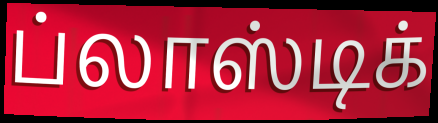
ப்லாஸ்டிக்